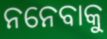
ନନେବାକୁ